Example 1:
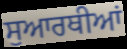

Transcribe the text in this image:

ਸੁਆਰਥੀਆਂ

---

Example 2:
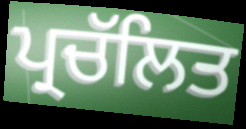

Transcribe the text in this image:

ਪ੍ਰਚੱਲਿਤ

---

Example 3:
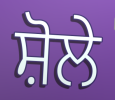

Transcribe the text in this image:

ਸ਼ੋਲੇ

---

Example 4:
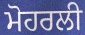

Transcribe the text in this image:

ਮੋਹਰਲੀ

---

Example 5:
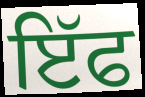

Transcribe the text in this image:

ਇੱਫ